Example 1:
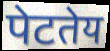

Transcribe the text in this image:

पेटतेय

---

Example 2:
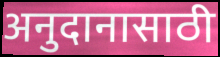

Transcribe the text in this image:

अनुदानासाठी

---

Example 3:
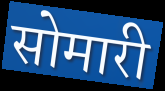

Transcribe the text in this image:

सोमारी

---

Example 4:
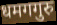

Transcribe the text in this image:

धमगगुरु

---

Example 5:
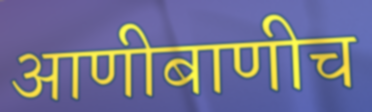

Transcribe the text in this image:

आणीबाणीच